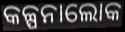
କଳ୍ପନାଲୋକ